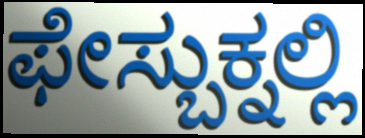
ಫೇಸ್ಬುಕ್ನಲ್ಲಿ